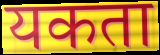
यकता